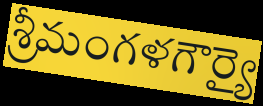
శ్రీమంగళగౌర్యై